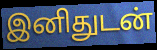
இனிதுடன்